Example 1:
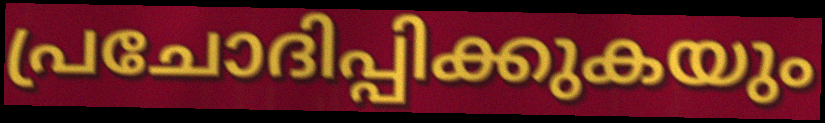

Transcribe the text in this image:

പ്രചോദിപ്പിക്കുകയും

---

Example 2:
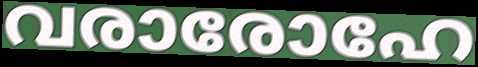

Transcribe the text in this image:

വരാരോഹേ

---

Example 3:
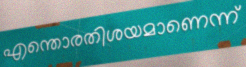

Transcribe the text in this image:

എന്തൊരതിശയമാണെന്ന്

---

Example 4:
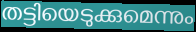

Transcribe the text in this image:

തട്ടിയെടുക്കുമെന്നും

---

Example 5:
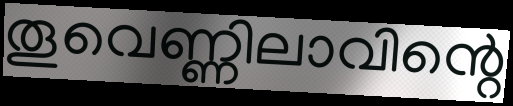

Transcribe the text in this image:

തൂവെണ്ണിലാവിന്റെ